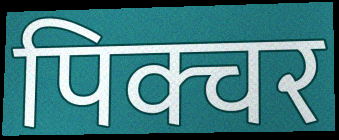
पिक्चर